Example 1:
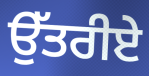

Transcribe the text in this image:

ਉੱਤਰੀਏ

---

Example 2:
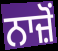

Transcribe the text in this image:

ਨਾਜ਼ੋਂ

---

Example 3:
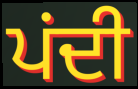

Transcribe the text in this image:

ਪਂਦੀ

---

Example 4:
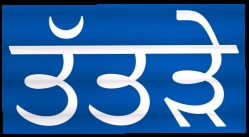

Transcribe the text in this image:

ਤੱਤੜੇ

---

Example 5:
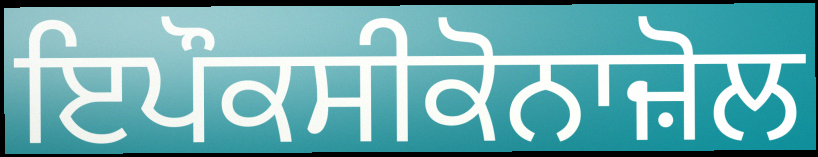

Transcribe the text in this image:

ਇਪੌਕਸੀਕੋਨਾਜ਼ੋਲ